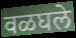
वळघले